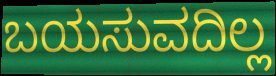
ಬಯಸುವದಿಲ್ಲ